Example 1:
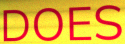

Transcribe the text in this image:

DOES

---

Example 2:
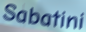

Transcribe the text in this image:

Sabatini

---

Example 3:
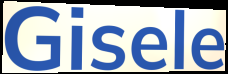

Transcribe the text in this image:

Gisele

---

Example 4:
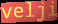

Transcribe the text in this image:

velji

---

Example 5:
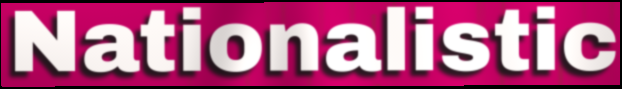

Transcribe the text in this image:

Nationalistic